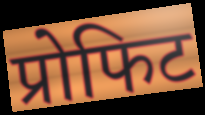
प्रोफिट